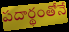
పదార్థంతోనే